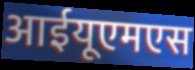
आईयूएमएस